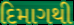
દિમાગથી